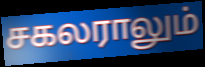
சகலராலும்